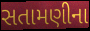
સતામણીના